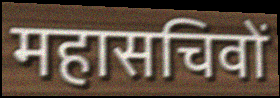
महासचिवों